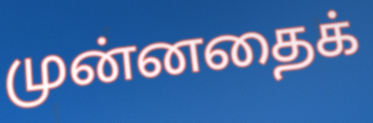
முன்னதைக்